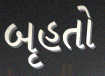
બૃહતો